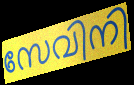
സേവിനി